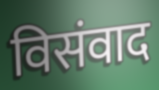
विसंवाद